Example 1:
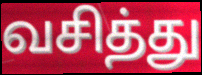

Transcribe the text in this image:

வசித்து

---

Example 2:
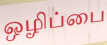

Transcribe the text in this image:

ஒழிப்பை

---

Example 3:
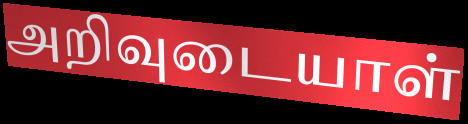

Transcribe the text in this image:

அறிவுடையாள்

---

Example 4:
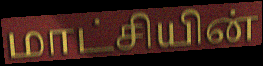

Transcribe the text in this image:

மாட்சியின்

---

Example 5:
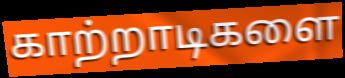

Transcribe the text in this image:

காற்றாடிகளை